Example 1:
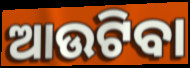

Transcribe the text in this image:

ଆଉଟିବା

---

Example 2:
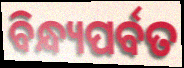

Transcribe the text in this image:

ବିନ୍ଧ୍ୟପର୍ବତ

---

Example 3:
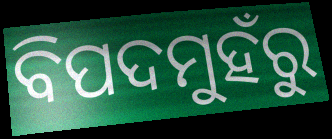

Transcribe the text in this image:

ବିପଦମୁହଁରୁ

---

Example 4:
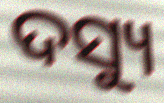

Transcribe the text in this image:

ଦସ୍ୟୁ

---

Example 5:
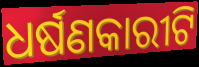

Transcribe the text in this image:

ଧର୍ଷଣକାରୀଟି